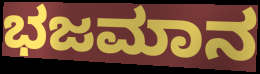
ಭಜಮಾನ